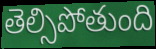
తెల్సిపోతుంది